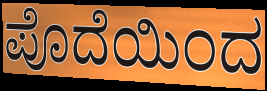
ಪೊದೆಯಿಂದ